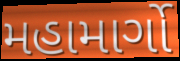
મહામાર્ગો